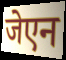
जेएन